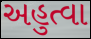
અહુત્વા